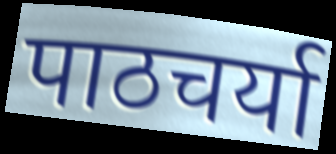
पाठचर्या